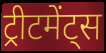
ट्रीटमेंट्स